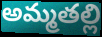
అమ్మతల్లి